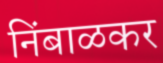
निंबाळकर